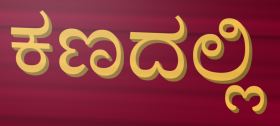
ಕಣದಲ್ಲಿ